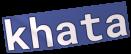
khata